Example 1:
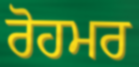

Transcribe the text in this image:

ਰੋਹਮਰ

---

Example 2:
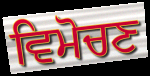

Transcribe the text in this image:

ਵਿਮੋਚਣ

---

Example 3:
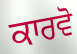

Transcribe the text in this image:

ਕਾਰਵੋ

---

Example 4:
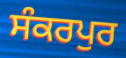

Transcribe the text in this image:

ਸੰਕਰਪੁਰ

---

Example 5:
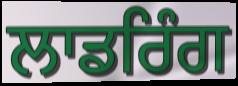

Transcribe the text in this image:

ਲਾਡਰਿੰਗ